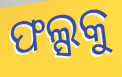
ଫଲ୍ସକୁ